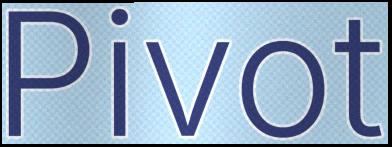
Pivot